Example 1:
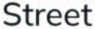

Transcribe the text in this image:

Street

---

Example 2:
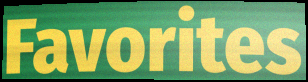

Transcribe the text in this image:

Favorites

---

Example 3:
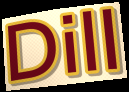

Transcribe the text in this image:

Dill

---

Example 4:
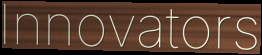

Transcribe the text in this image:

Innovators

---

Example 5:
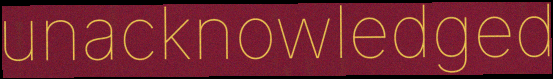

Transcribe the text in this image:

unacknowledged